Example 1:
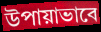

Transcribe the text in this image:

উপায়াভাবে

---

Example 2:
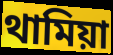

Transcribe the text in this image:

থামিয়া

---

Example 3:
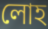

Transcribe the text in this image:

লোহ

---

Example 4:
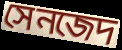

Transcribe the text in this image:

সেনজেদ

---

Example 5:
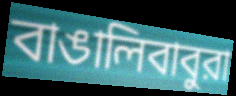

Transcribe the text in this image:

বাঙালিবাবুরা